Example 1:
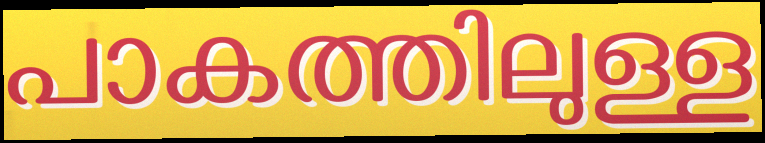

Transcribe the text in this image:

പാകത്തിലുള്ള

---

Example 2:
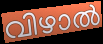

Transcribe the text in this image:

വിഴാൽ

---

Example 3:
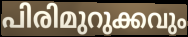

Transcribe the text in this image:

പിരിമുറുക്കവും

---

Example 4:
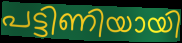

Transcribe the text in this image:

പട്ടിണിയായി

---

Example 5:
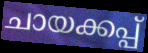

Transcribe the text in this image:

ചായക്കപ്പ്